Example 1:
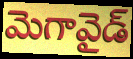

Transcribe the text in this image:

మెగావైడ్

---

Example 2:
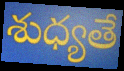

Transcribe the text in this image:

శుధ్యతే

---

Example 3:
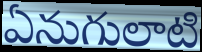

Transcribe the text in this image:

ఏనుగులాటి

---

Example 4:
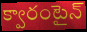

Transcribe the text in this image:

క్వారంటైన్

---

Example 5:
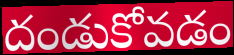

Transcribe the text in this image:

దండుకోవడం